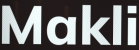
Makli